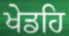
ਖੇਡਹਿ